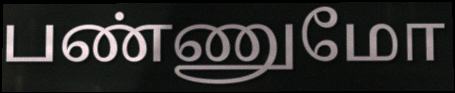
பண்ணுமோ